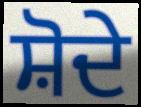
ਸ਼ੋਦੇ